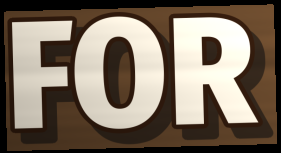
FOR